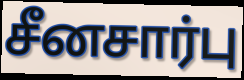
சீனசார்பு